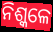
ନିଶ୍କଳେ